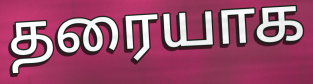
தரையாக